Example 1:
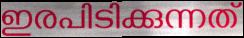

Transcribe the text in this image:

ഇരപിടിക്കുന്നത്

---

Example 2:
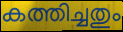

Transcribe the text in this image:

കത്തിച്ചതും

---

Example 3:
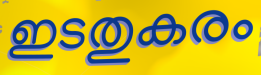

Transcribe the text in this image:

ഇടതുകരം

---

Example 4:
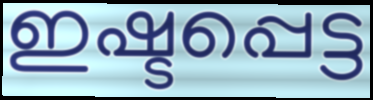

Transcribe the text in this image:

ഇഷ്ടപ്പെട്ട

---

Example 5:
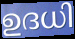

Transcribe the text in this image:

ഉദധി